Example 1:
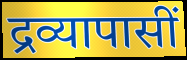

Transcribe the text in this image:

द्रव्यापासीं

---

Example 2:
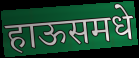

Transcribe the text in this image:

हाऊसमधे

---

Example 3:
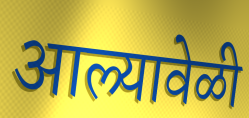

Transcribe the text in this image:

आल्यावेळी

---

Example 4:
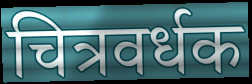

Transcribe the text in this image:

चित्रवर्धक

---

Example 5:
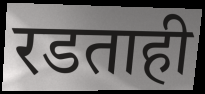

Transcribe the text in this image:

रडताही